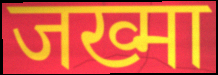
जख्मा